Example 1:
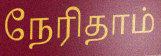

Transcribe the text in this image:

நேரிதாம்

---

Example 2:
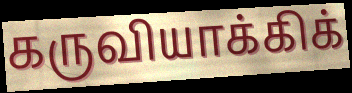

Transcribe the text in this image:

கருவியாக்கிக்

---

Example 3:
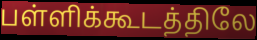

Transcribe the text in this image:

பள்ளிக்கூடத்திலே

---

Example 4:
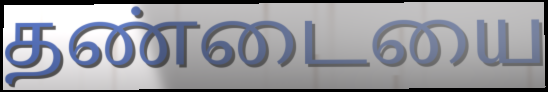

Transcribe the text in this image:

தண்டையை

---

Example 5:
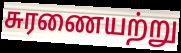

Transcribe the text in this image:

சுரணையற்று